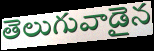
తెలుగువాడైన